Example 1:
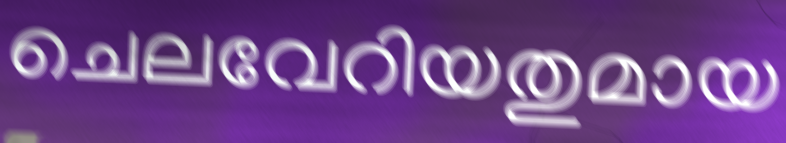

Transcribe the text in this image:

ചെലവേറിയതുമായ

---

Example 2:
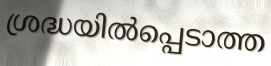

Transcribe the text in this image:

ശ്രദ്ധയിൽപ്പെടാത്ത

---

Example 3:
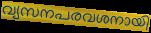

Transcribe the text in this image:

വ്യസനപരവശനായി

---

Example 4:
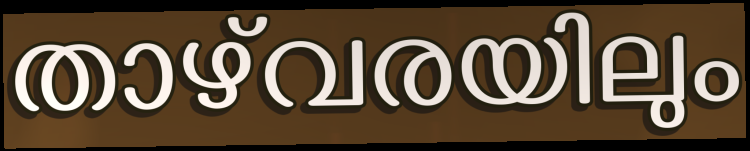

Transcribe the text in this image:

താഴ്‌വരയിലും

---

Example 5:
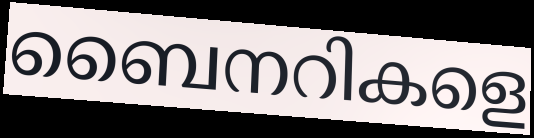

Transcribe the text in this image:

ബൈനറികളെ